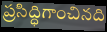
ప్రసిద్ధిగాంచినది